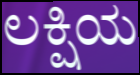
ಲಕ್ಷಿಯ